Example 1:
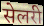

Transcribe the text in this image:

सेलरी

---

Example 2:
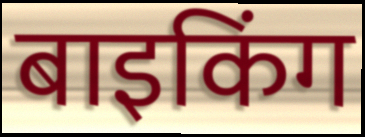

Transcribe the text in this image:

बाइकिंग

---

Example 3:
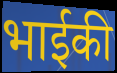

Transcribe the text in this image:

भाईकी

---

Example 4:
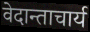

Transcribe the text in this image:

वेदान्ताचार्य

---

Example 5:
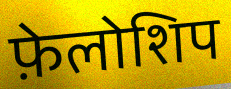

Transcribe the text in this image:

फ़ेलोशिप